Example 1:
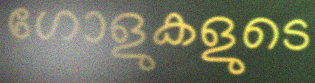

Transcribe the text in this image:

ഗോളുകളുടെ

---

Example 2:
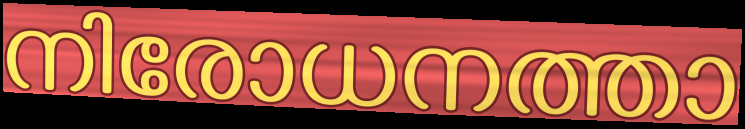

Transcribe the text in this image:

നിരോധനത്താ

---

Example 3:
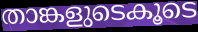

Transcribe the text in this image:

താങ്കളുടെകൂടെ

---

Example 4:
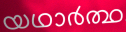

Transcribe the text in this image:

യഥാർത്ഥ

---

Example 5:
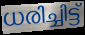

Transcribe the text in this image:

ധരിച്ചിട്ട്